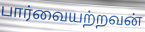
பார்வையற்றவன்